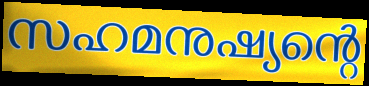
സഹമനുഷ്യന്റെ